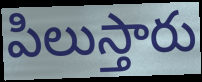
పిలుస్తారు